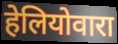
हेलियोवारा